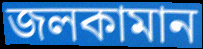
জলকামান